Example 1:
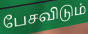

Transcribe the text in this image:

பேசவிடும்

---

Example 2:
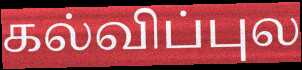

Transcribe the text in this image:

கல்விப்புல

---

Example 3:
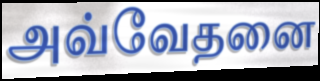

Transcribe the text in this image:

அவ்வேதனை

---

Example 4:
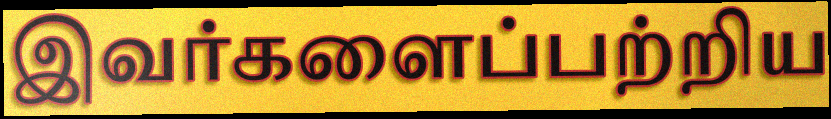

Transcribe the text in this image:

இவர்களைப்பற்றிய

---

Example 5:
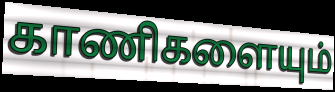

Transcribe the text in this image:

காணிகளையும்